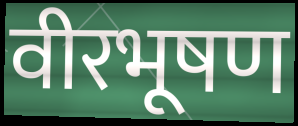
वीरभूषण